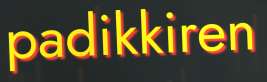
padikkiren